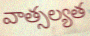
వాత్సల్యత